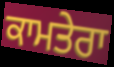
ਕਾਮਤੇਰਾ